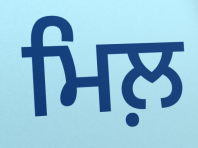
ਮਿਲ਼